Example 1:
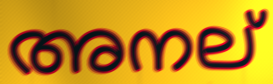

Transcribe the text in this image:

അനല്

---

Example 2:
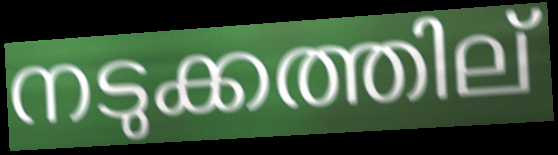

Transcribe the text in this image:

നടുക്കത്തില്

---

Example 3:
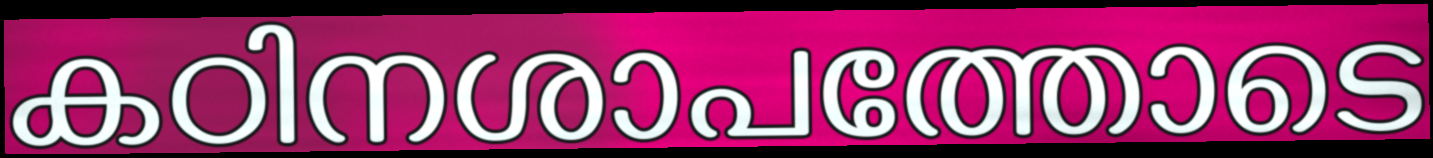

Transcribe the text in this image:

കഠിനശാപത്തോടെ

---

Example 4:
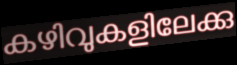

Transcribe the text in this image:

കഴിവുകളിലേക്കു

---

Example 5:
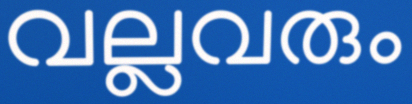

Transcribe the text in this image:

വല്ലവരും